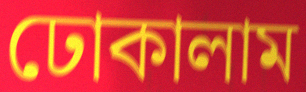
ঢোকালাম